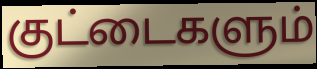
குட்டைகளும்